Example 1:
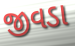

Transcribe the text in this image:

જીવડા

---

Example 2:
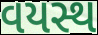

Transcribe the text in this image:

વયસ્થ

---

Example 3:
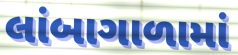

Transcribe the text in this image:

લાંબાગાળામાં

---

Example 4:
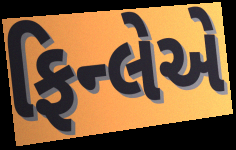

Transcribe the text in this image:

ફિન્લેએ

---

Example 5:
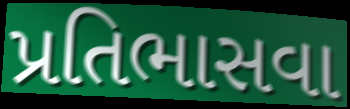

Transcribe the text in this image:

પ્રતિભાસવા